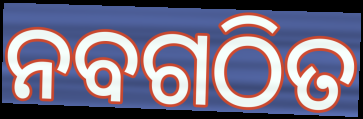
ନବଗଠିତ